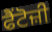
ਫੈਂਟੋਜ਼ੀ